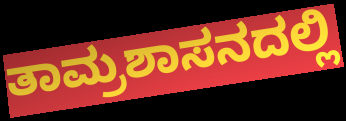
ತಾಮ್ರಶಾಸನದಲ್ಲಿ